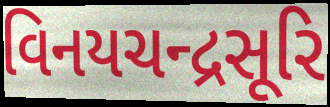
વિનયચન્દ્રસૂરિ